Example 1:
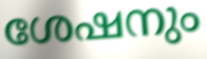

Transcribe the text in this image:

ശേഷനും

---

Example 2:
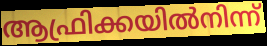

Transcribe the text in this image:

ആഫ്രിക്കയിൽനിന്ന്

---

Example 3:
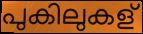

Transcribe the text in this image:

പുകിലുകള്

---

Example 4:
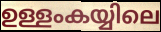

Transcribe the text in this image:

ഉള്ളംകയ്യിലെ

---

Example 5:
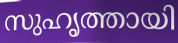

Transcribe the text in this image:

സുഹൃത്തായി